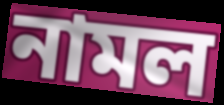
নামল